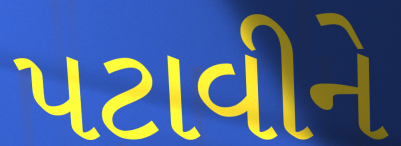
પટાવીને